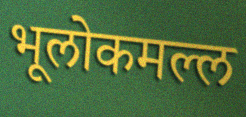
भूलोकमल्ल